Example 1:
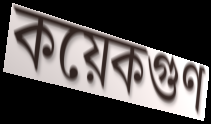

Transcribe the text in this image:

কয়েকগুণ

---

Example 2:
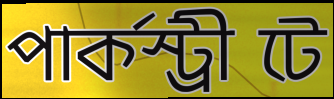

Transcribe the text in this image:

পার্কস্ট্রীটে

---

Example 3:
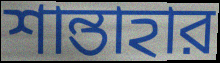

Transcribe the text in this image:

শান্তাহার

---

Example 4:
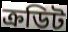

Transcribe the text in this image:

ক্রডিট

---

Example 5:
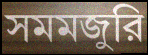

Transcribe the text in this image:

সমমজুরি